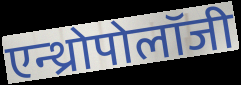
एन्थ्रोपोलॉजी